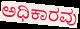
ಅಧಿಕಾರವು